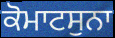
ਕੋਮਾਟਸੁਨਾ